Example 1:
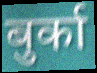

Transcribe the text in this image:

बुर्का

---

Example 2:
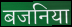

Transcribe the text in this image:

बजनिया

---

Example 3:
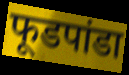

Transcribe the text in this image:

फूडपांडा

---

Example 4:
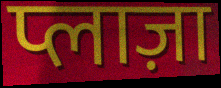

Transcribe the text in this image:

प्लाज़ा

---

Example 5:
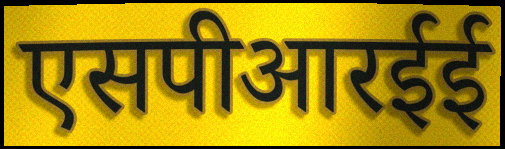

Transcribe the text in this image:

एसपीआरईई